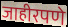
जाहीरपणे